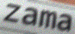
zama